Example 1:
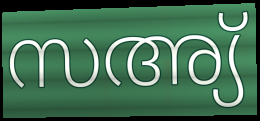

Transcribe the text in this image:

സഅ്യ്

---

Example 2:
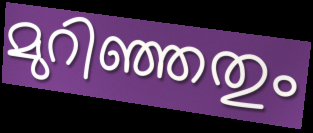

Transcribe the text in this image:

മുറിഞ്ഞതും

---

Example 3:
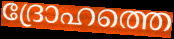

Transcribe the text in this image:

ദ്രോഹത്തെ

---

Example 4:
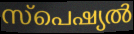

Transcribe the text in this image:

സ്‌പെഷ്യൽ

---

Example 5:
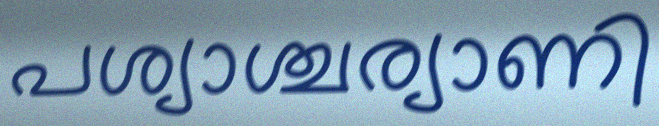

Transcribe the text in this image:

പശ്യാശ്ചര്യാണി